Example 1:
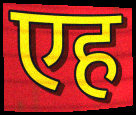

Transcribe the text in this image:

एह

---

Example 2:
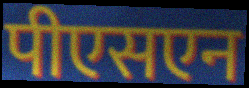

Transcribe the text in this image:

पीएसएन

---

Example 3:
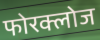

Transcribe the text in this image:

फोरक्लोज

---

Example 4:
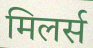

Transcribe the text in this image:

मिलर्स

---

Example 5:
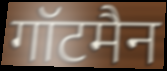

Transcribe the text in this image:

गॉटमैन